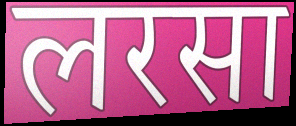
लरसा